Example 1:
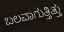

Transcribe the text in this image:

ಬಲವಾಗುತ್ತಿತ್ತು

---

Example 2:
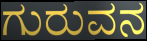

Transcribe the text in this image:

ಗುರುವನ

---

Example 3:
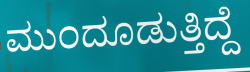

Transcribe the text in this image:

ಮುಂದೂಡುತ್ತಿದ್ದೆ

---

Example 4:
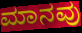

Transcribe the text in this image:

ಮಾನವು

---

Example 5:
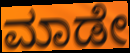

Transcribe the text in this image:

ಮಾಡೇ